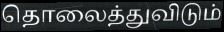
தொலைத்துவிடும்